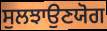
ਸੁਲਝਾਉਣਯੋਗ